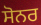
ਸੋਨਰ